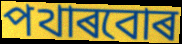
পথাৰবোৰ